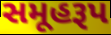
સમૂહરૂપ